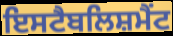
ਇਸਟੈਬਲਿਸ਼ਮੈਂਟ